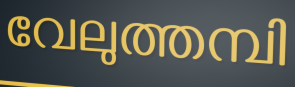
വേലുത്തമ്പി